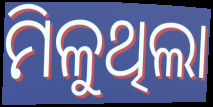
ମିଳୁଥିଲା